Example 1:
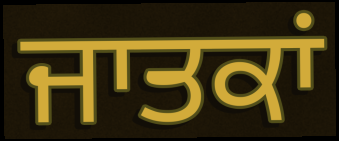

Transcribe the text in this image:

ਜਾਤਕਾਂ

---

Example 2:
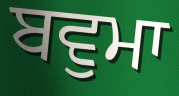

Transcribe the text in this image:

ਬਵੁਮਾ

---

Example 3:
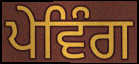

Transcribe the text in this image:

ਪੇਵਿੰਗ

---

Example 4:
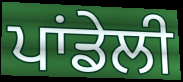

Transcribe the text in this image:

ਪਾਂਡੇਲੀ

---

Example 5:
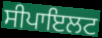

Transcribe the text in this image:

ਸੀਪਾਇਲਟ